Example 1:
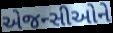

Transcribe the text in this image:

એજન્સીઓને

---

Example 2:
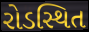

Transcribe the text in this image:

રોડસ્થિત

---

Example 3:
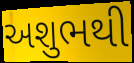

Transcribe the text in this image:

અશુભથી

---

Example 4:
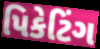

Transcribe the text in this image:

પિકેટિંગ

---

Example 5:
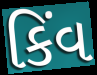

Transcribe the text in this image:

કિંવ